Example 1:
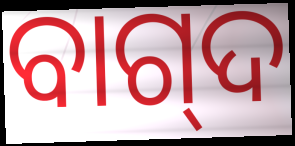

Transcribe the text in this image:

ବାଗ୍‌ଦ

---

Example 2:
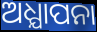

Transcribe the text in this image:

ଅଧ୍ଯାପନା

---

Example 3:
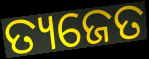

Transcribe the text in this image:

ତ୍ୟଜେତ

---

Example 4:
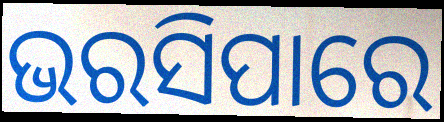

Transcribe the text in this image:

ଭରସିପାରେ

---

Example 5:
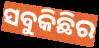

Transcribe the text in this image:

ସବୁକିଛିର